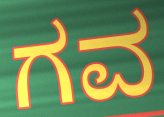
ಗವ